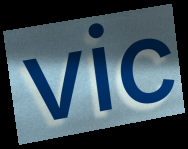
vic